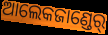
ଆଲେକଜାଣ୍ଡେର୍